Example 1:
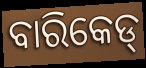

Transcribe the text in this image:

ବାରିକେଡ୍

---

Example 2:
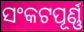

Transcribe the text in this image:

ସଂକଟପୂର୍ଣ୍ଣ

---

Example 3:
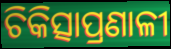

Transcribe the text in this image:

ଚିକିତ୍ସାପ୍ରଣାଳୀ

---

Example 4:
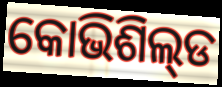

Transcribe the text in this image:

କୋଭିଶିଲ୍‌ଡ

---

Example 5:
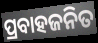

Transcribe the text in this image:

ପ୍ରବାହଜନିତ